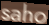
saho